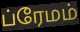
ப்ரேமம்